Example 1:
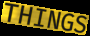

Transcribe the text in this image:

THINGS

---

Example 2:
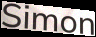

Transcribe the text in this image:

Simon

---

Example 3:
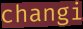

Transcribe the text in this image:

changi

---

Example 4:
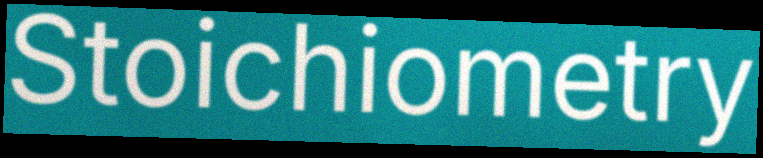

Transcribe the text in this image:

Stoichiometry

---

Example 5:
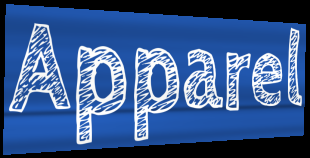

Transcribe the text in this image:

Apparel